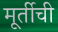
मूर्तीची